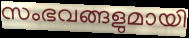
സംഭവങ്ങളുമായി